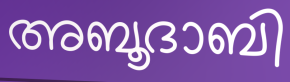
അബൂദാബി